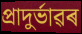
প্ৰাদুৰ্ভাৱৰ